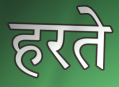
हरते